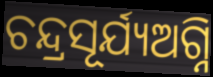
ଚନ୍ଦ୍ରସୂର୍ଯ୍ୟଅଗ୍ନି